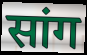
सांग